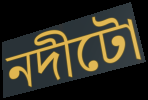
নদীটো